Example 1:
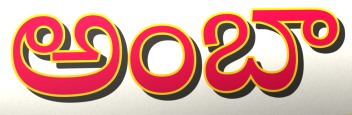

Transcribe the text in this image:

అంబా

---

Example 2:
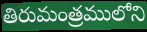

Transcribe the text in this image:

తిరుమంత్రములోని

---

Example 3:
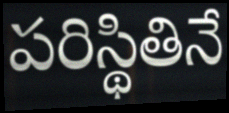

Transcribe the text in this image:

పరిస్థితినే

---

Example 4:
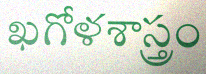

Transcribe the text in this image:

ఖగోళశాస్త్రం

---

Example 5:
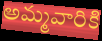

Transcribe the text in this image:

అమ్మవారికి